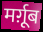
मर्ग़ूब